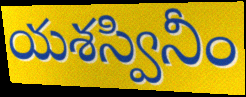
యశస్వినీం